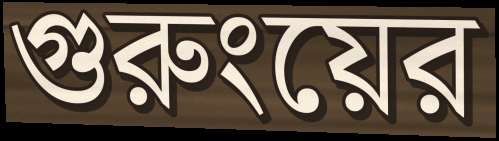
গুরুংয়ের